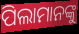
ପିଲାମାନଙ୍କୁ